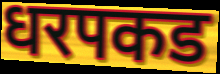
धरपकड